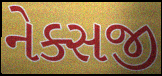
નેક્સજી